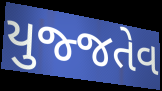
યુજ્જતેવ